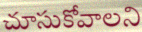
చూసుకోవాలని